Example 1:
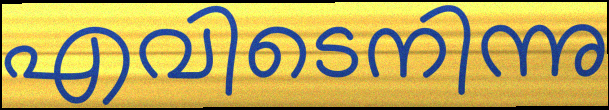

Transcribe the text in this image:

എവിടെനിന്നു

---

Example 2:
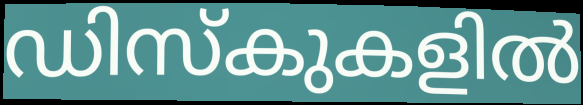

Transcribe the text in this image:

ഡിസ്കുകളിൽ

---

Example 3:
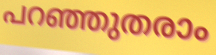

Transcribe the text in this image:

പറഞ്ഞുതരാം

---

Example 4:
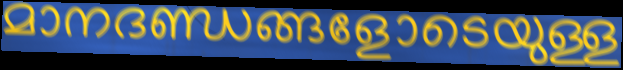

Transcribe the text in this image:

മാനദണ്ഡങ്ങളോടെയുള്ള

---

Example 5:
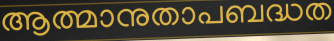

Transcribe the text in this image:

ആത്മാനുതാപബദ്ധത